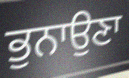
ਭੁਨਾਉਣਾ